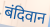
बंदिवान